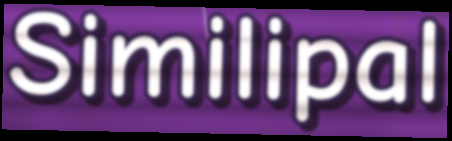
Similipal